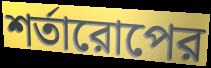
শর্তারোপের